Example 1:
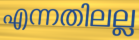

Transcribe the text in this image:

എന്നതിലല്ല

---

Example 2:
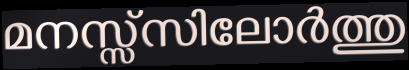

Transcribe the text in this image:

മനസ്സ്സിലോർത്തു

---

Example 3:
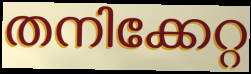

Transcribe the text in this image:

തനിക്കേറ്റ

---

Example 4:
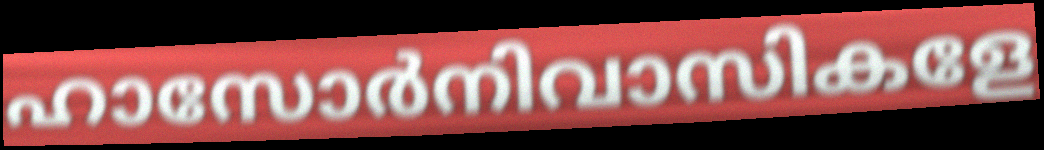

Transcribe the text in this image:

ഹാസോർനിവാസികളേ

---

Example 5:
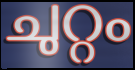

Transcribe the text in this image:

ചുറ്റം